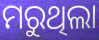
ମରୁଥିଲା